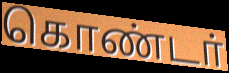
கொண்டர்